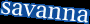
savanna